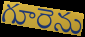
గూరెను